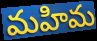
మహిమ